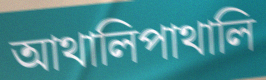
আথালিপাথালি